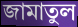
জামাতুল